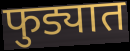
फुड्यात